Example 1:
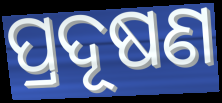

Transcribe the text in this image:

ପ୍ରଦୂଷଣ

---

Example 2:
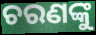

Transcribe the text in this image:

ଚରଣଙ୍କୁ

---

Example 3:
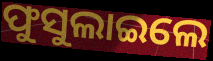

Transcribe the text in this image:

ଫୁସୁଲାଇଲେ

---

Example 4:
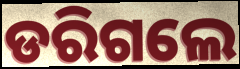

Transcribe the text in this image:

ଡରିଗଲେ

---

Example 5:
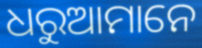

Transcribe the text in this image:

ଧରୁଆମାନେ